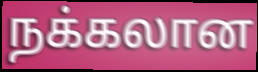
நக்கலான